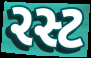
રસ્ટ